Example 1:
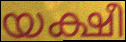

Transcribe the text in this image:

യക്ഷീ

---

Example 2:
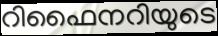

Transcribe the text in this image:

റിഫൈനറിയുടെ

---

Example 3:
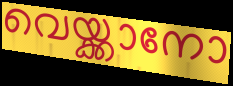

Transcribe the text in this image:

വെയ്ക്കാനോ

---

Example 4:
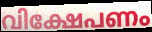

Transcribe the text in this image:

വിക്ഷേപണം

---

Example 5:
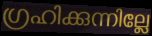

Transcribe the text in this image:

ഗ്രഹിക്കുന്നില്ലേ